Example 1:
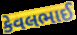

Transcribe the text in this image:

કેવલભાઈ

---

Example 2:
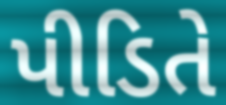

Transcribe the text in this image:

પીડિતે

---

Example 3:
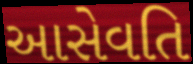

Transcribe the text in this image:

આસેવતિ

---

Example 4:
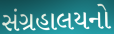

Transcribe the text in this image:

સંગ્રહાલયનો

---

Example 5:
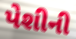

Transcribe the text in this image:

પેશીની